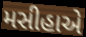
મસીહાએ